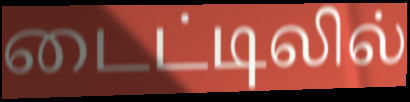
டைட்டிலில்